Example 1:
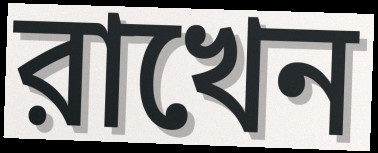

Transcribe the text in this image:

রাখেন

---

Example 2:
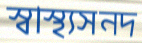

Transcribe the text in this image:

স্বাস্থ্যসনদ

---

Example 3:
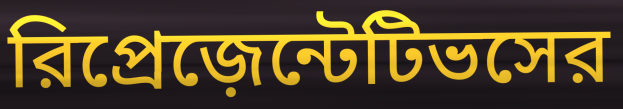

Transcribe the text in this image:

রিপ্রেজ়েন্টেটিভসের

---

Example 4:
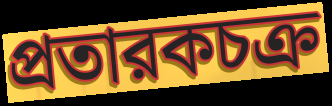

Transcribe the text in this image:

প্রতারকচক্র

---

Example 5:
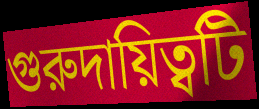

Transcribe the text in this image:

গুরুদায়িত্বটি